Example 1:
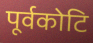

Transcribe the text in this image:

पूर्वकोटि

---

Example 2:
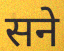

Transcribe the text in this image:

सने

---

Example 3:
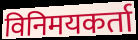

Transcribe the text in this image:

विनिमयकर्ता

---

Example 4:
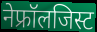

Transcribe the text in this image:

नेफ्रॉलजिस्ट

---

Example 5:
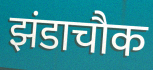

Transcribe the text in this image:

झंडाचौक